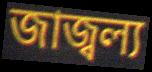
জাজ্বল্য